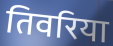
तिवरिया